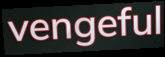
vengeful